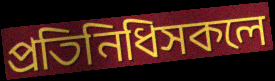
প্ৰতিনিধিসকলে